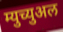
म्युच्युअल